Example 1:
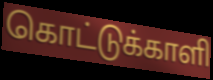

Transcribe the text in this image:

கொட்டுக்காளி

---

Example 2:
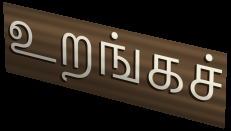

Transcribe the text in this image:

உறங்கச்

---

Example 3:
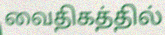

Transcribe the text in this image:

வைதிகத்தில்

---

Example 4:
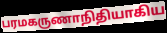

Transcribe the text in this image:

பரமகருணாநிதியாகிய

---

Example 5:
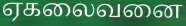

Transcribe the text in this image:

ஏகலைவனை